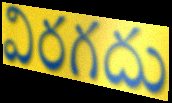
విరగదు